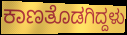
ಕಾಣತೊಡಗಿದ್ದಳು